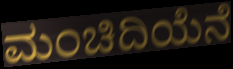
ಮಂಚಿದಿಯೆನೆ